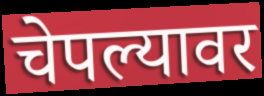
चेपल्यावर